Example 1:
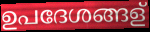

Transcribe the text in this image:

ഉപദേശങ്ങള്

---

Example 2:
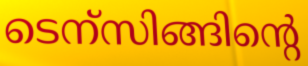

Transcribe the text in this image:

ടെന്സിങ്ങിന്റെ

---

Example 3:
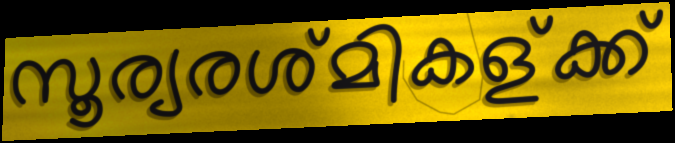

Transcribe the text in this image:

സൂര്യരശ്മികള്ക്ക്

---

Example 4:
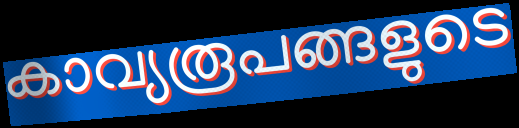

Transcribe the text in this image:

കാവ്യരൂപങ്ങളുടെ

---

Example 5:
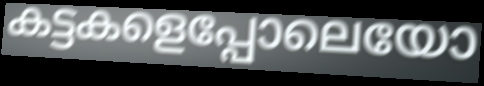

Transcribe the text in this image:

കട്ടകളെപ്പോലെയോ